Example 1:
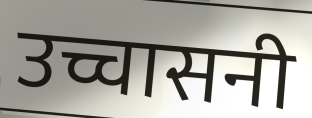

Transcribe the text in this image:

उच्चासनी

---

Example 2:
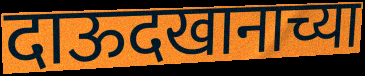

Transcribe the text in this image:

दाऊदखानाच्या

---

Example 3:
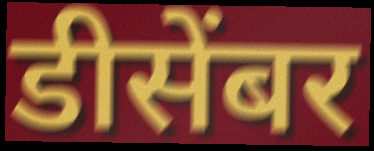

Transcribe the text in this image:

डीसेंबर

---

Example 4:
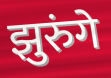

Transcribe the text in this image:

झुरुंगे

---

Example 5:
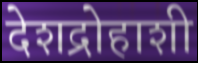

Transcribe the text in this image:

देशद्रोहाशी